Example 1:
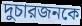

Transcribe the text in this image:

দুচারজনকে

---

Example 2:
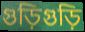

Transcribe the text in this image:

গুড়িগুড়ি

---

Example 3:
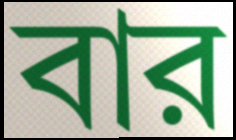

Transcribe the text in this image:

বার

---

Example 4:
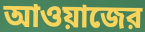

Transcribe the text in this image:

আওয়াজের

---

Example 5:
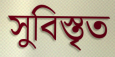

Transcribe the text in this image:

সুবিস্তৃত